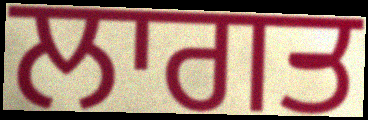
ਲਾਗਤ